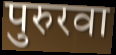
पुरुरवा